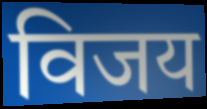
विजय